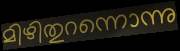
മിഴിതുറന്നൊന്നു